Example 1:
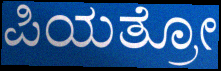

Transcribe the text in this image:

ಪಿಯತ್ರೋ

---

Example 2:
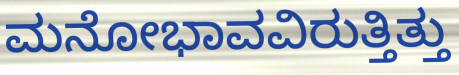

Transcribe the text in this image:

ಮನೋಭಾವವಿರುತ್ತಿತ್ತು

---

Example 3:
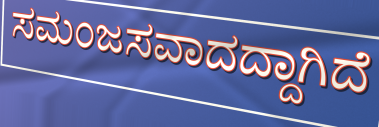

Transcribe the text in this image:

ಸಮಂಜಸವಾದದ್ದಾಗಿದೆ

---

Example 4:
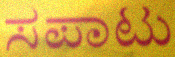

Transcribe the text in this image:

ಸಪಾಟು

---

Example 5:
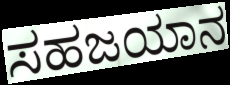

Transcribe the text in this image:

ಸಹಜಯಾನ